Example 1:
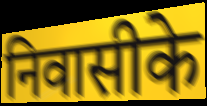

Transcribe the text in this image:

निवासीके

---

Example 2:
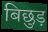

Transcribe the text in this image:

बिछुड़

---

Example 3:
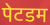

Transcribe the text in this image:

पेटडम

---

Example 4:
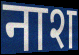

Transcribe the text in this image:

नाश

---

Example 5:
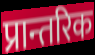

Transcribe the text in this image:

प्रान्तरिक